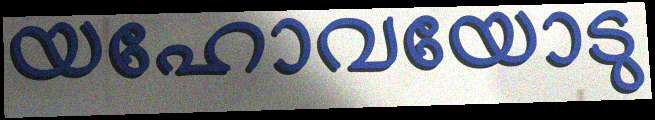
യഹോവയോടു